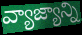
వ్యాజ్యాన్ని